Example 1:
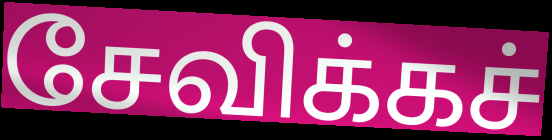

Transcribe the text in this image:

சேவிக்கச்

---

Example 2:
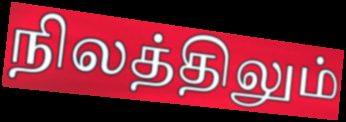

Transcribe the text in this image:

நிலத்திலும்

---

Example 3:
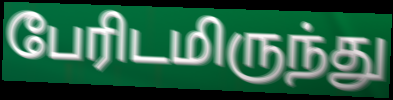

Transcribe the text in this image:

பேரிடமிருந்து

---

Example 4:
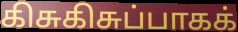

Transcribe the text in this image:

கிசுகிசுப்பாகக்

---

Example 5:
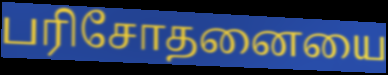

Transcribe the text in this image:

பரிசோதனையை